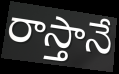
రాస్తానే